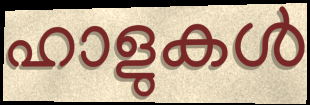
ഹാളുകൾ